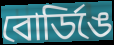
বোর্ডিঙে